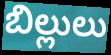
బిల్లులు